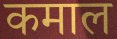
कमाल